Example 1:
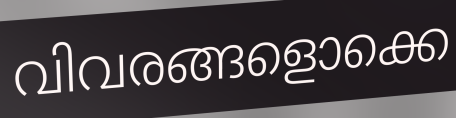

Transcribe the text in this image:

വിവരങ്ങളൊക്കെ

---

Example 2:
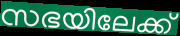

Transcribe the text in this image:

സഭയിലേക്ക്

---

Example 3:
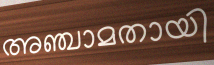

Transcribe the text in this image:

അഞ്ചാമതായി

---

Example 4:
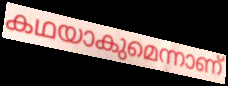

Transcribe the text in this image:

കഥയാകുമെന്നാണ്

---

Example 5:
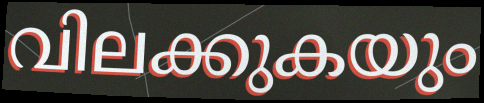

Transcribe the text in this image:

വിലക്കുകയും